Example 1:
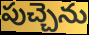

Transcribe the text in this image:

పుచ్చెను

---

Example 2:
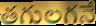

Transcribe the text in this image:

తగులగనే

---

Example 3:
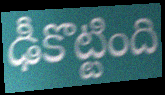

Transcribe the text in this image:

ఢీకొట్టింది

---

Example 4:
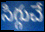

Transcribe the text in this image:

సిగ్గుచే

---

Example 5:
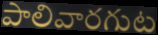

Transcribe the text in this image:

పాలివారగుట